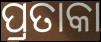
ପ୍ରତାକା